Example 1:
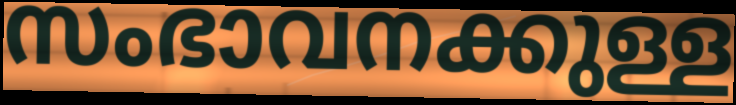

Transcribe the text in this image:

സംഭാവനക്കുള്ള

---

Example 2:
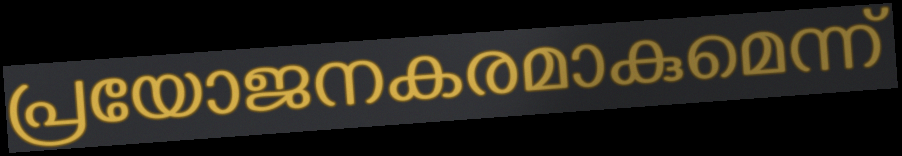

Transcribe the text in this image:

പ്രയോജനകരമാകുമെന്ന്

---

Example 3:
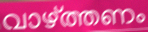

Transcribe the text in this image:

വാഴ്ത്തണം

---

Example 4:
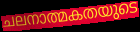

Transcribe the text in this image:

ചലനാത്മകതയുടെ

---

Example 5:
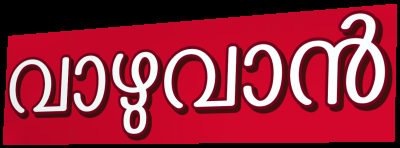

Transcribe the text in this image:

വാഴുവാൻ